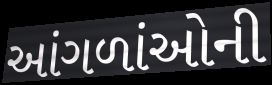
આંગળાંઓની